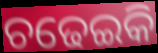
ଚଢେଇକି